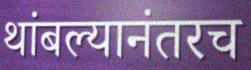
थांबल्यानंतरच